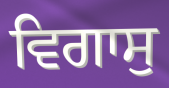
ਵਿਗਾਸੁ